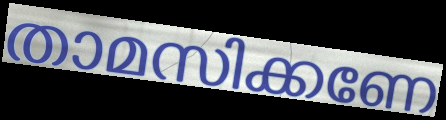
താമസിക്കണേ